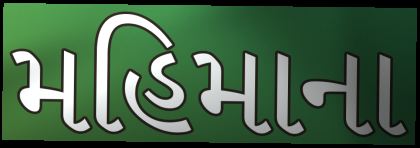
મહિમાના